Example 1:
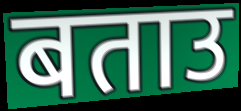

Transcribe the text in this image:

बताउ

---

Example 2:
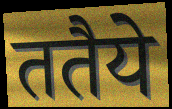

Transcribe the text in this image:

ततैये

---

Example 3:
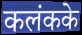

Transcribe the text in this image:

कलंकके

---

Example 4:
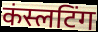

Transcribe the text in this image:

कंस्लटिंग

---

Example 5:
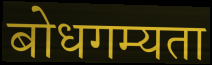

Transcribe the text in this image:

बोधगम्यता